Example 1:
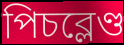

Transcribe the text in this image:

পিচব্লেণ্ড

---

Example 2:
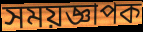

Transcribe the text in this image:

সময়জ্ঞাপক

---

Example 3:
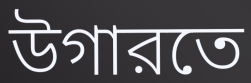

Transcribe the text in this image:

উগারতে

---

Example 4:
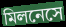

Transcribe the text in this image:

মিলনেসে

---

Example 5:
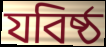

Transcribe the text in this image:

যবিষ্ঠ